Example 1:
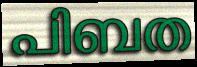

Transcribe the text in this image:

പിബത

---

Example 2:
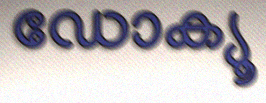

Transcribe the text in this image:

ഡോക്യൂ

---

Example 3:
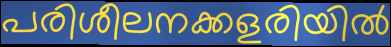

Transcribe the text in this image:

പരിശീലനക്കളരിയിൽ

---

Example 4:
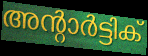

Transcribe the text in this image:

അന്റാർട്ടിക്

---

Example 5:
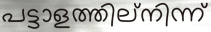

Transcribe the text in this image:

പട്ടാളത്തില്നിന്ന്